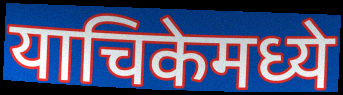
याचिकेमध्ये